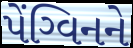
પેંગ્વિનને